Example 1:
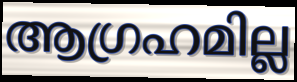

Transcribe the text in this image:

ആഗ്രഹമില്ല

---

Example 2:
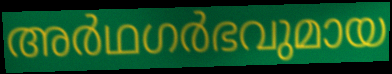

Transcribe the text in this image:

അർഥഗർഭവുമായ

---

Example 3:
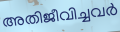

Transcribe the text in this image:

അതിജീവിച്ചവർ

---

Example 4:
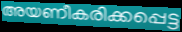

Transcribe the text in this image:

അയണീകരിക്കപ്പെട്ട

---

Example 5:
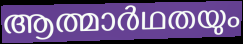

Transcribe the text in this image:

ആത്മാർഥതയും